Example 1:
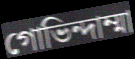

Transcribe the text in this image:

গোভিন্দাম্মা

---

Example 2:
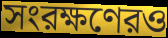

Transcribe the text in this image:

সংরক্ষণেরও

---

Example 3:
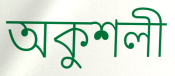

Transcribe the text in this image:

অকুশলী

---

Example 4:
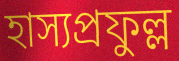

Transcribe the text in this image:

হাস্যপ্রফুল্ল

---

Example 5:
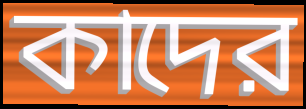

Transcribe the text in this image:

কাদের